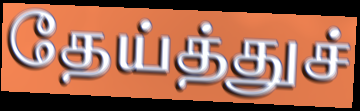
தேய்த்துச்